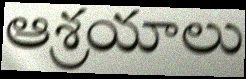
ఆశ్రయాలు